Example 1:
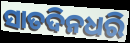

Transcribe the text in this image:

ସାତଦିନଧରି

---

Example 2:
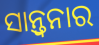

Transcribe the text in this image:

ସାନ୍ତ୍ୱନାର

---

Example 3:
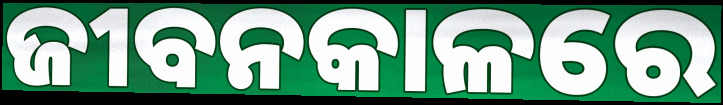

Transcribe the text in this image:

ଜୀବନକାଳରେ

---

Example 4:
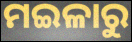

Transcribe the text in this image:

ମଇଳାରୁ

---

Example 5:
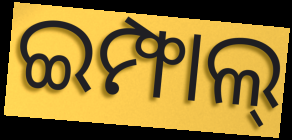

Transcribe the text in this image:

ଇମ୍ଫାଲ୍